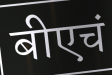
बीएचं